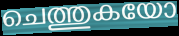
ചെത്തുകയോ